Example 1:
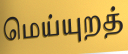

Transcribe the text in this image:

மெய்யுறத்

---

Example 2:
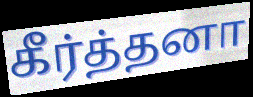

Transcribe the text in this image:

கீர்த்தனா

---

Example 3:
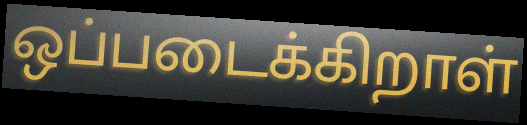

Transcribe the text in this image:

ஒப்படைக்கிறாள்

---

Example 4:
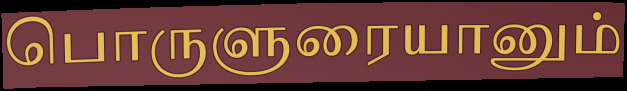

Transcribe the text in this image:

பொருளுரையானும்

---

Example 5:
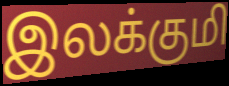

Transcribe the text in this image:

இலக்குமி